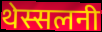
थेस्सलनी